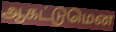
ஆகட்டுமென